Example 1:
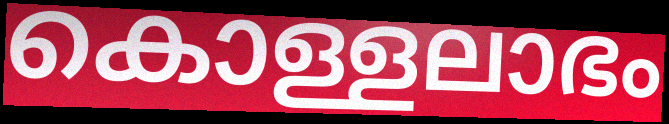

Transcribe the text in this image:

കൊള്ളലാഭം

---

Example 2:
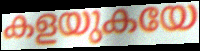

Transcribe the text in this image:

കളയുകയേ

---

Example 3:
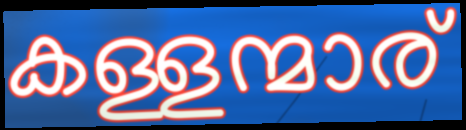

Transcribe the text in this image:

കള്ളന്മാര്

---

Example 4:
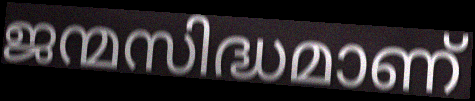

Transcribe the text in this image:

ജന്മസിദ്ധമാണ്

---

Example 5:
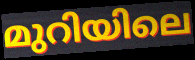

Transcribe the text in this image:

മുറിയിലെ